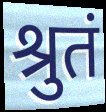
श्रुतं